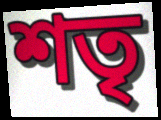
শতৃ